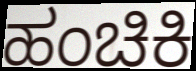
ಹಂಚಿಕಿ